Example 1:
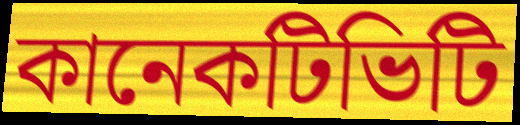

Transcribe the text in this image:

কানেকটিভিটি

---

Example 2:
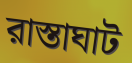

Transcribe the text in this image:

রাস্তাঘাট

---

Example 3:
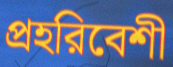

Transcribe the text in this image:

প্রহরিবেশী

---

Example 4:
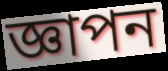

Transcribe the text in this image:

জ্ঞাপন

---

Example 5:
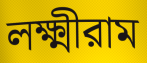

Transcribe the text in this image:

লক্ষ্মীরাম